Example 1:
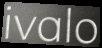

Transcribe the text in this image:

ivalo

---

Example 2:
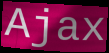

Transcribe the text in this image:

Ajax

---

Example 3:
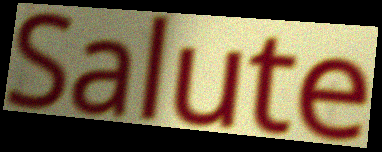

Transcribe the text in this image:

Salute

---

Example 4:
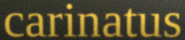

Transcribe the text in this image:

carinatus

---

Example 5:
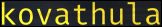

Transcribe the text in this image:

kovathula